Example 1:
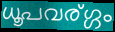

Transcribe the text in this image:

ധൂപവര്ഗ്ഗം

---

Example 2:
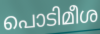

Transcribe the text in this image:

പൊടിമീശ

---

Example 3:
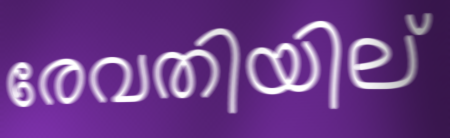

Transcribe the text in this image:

രേവതിയില്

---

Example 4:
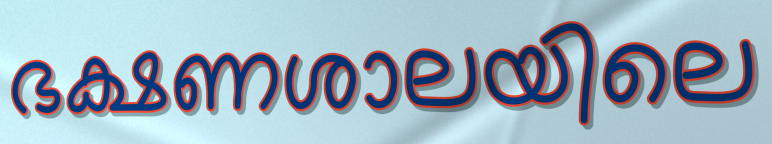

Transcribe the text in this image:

ഭക്ഷണശാലയിലെ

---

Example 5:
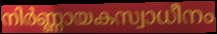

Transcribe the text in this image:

നിർണ്ണായകസ്വാധീനം